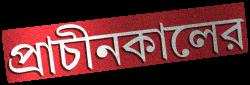
প্রাচীনকালের